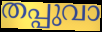
തപ്പുവാ